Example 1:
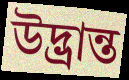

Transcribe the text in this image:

উদ্ভ্রান্ত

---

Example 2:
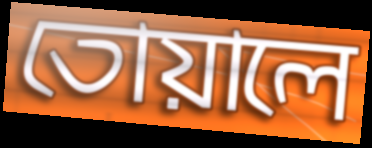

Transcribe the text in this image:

তোয়ালে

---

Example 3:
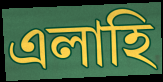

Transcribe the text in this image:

এলাহি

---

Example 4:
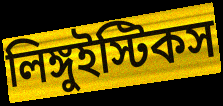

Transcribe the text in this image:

লিঙ্গুইস্টিকস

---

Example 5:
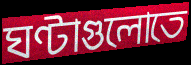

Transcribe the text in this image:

ঘণ্টাগুলোতে